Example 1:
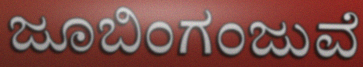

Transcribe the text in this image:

ಜೂಬಿಂಗಂಜುವೆ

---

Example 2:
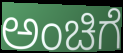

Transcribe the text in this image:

ಅಂಚಿಗೆ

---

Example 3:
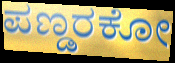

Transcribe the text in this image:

ಪಣ್ಡರಕೋ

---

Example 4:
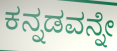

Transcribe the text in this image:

ಕನ್ನಡವನ್ನೇ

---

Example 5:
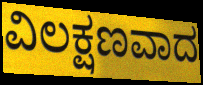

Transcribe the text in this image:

ವಿಲಕ್ಷಣವಾದ